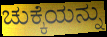
ಚುಕ್ಕೆಯನ್ನು